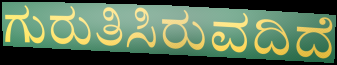
ಗುರುತಿಸಿರುವದಿದೆ